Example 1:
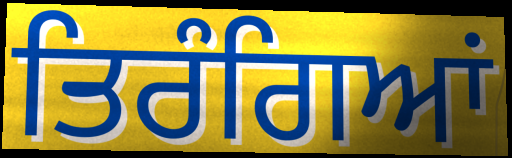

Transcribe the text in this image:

ਤਿਰੰਗਿਆਂ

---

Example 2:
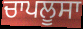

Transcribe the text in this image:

ਚਾਪਲੂਸਾ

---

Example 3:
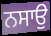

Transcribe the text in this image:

ਨਸਾਉ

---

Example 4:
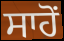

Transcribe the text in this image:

ਸਾਹੋਂ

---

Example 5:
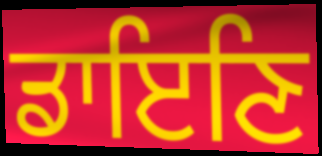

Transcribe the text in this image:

ਡਾਇਣਿ